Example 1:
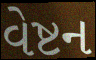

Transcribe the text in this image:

વેષ્ટન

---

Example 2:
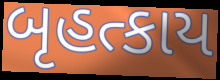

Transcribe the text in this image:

બૃહત્કાય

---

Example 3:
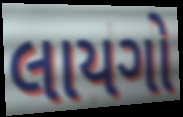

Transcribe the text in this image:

લાયગો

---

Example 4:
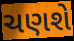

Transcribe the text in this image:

ચણશે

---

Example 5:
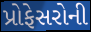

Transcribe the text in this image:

પ્રોફેસરોની